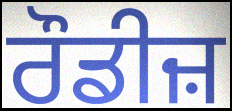
ਰੌਡੀਜ਼